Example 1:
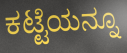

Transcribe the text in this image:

ಕಟ್ಟೆಯನ್ನೂ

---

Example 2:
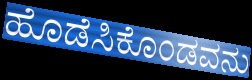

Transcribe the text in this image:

ಹೊಡೆಸಿಕೊಂಡವನು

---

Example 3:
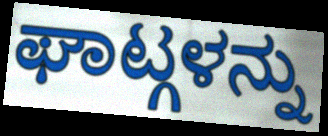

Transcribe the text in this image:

ಘಾಟ್ಗಳನ್ನು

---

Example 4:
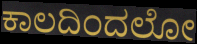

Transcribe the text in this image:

ಕಾಲದಿಂದಲೋ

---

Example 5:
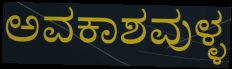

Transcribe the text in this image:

ಅವಕಾಶವುಳ್ಳ